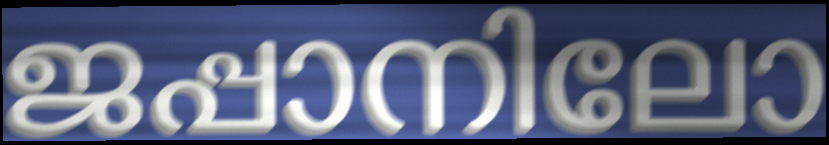
ജപ്പാനിലോ